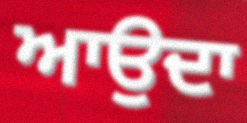
ਆਉਦਾ